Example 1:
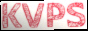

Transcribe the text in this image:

KVPS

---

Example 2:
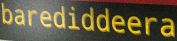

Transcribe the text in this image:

barediddeera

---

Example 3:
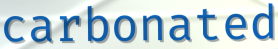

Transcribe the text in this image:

carbonated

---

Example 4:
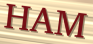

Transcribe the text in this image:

HAM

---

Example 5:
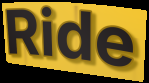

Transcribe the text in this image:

Ride